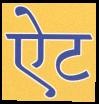
ऐट